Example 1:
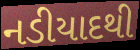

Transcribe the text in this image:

નડીયાદથી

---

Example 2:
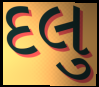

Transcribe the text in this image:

દલુ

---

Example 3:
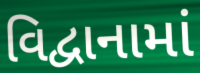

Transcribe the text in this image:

વિદ્વાનામાં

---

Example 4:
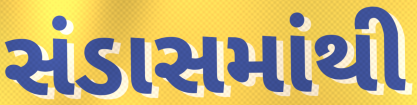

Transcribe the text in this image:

સંડાસમાંથી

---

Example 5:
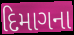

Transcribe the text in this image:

દિમાગના